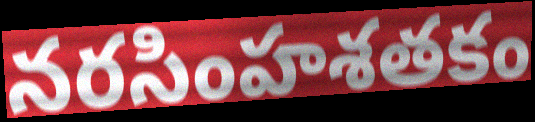
నరసింహశతకం